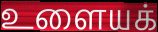
உளையக்